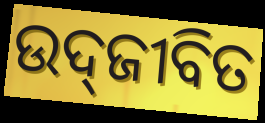
ଉଦ୍‍ଜୀବିତ